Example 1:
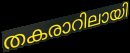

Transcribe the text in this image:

തകരാറിലായി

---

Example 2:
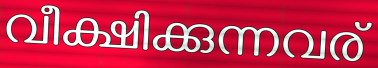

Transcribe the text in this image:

വീക്ഷിക്കുന്നവര്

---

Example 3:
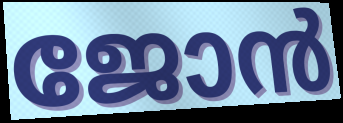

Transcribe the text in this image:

ജോൻ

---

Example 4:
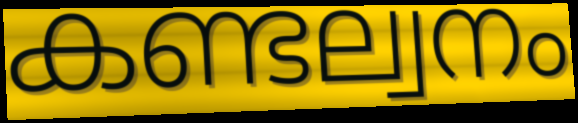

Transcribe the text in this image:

കണ്ടല്വനം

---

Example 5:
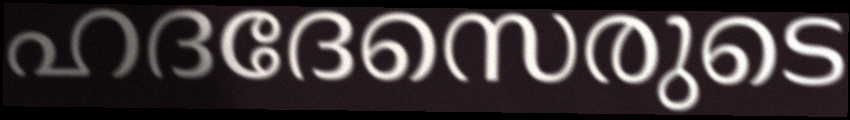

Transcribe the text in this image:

ഹദദേസെരുടെ